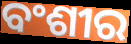
ବଂଶୀର